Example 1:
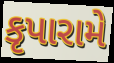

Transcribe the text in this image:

કૃપારામે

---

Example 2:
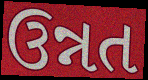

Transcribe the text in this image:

ઉન્નત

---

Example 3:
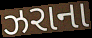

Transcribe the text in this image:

ઝરાના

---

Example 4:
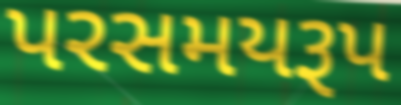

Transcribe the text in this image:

પરસમયરૂપ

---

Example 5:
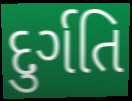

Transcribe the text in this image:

દુર્ગતિ